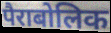
पैराबोलिक